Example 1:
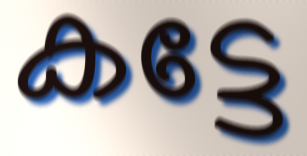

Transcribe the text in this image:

കട്ടേ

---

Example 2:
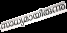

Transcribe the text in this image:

സാധ്യമായിരുന്നു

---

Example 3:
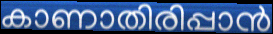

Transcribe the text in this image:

കാണാതിരിപ്പാൻ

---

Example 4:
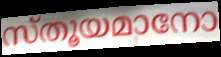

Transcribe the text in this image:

സ്തൂയമാനോ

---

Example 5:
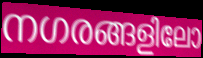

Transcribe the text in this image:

നഗരങ്ങളിലോ